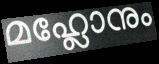
മഹ്ലോനും